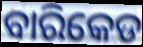
ବାରିକେଡ